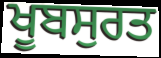
ਖੂਬਸੁਰਤ